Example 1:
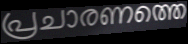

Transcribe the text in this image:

പ്രചാരണത്തെ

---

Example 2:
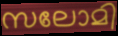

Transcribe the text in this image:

സലോമി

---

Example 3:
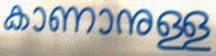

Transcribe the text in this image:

കാണാനുള്ള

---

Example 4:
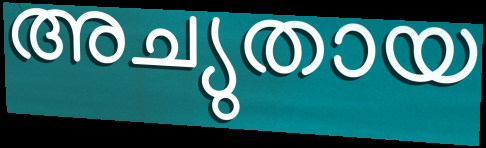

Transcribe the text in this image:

അച്യുതായ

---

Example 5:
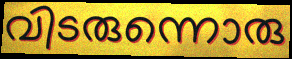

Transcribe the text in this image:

വിടരുന്നൊരു